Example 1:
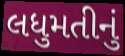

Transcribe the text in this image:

લધુમતીનું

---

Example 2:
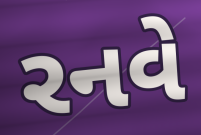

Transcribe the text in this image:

રનવે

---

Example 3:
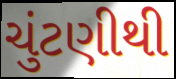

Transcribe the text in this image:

ચુંટણીથી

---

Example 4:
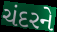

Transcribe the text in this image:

ચંદરને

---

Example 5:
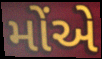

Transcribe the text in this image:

મોંએ